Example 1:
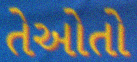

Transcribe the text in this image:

તેઓતો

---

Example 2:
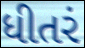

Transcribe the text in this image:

ધીતરં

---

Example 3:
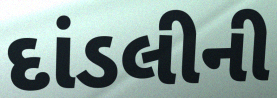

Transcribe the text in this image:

દાંડલીની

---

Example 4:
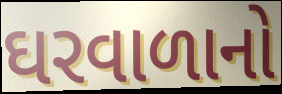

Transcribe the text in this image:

ઘરવાળાનો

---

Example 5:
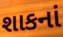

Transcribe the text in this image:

શાકનાં